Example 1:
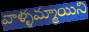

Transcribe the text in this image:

వాళ్ళమ్మాయిని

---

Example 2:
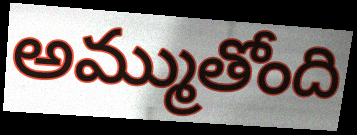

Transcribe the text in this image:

అమ్ముతోంది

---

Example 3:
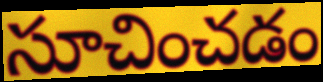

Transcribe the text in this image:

సూచించడం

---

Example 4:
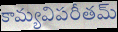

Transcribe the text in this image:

కామ్యవిపరీతమ్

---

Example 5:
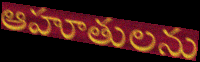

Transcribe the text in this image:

ఆహూతులను